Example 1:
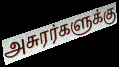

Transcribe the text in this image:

அசுரர்களுக்கு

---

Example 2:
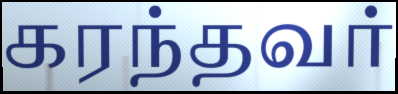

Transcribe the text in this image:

கரந்தவர்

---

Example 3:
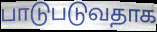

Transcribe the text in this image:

பாடுபடுவதாக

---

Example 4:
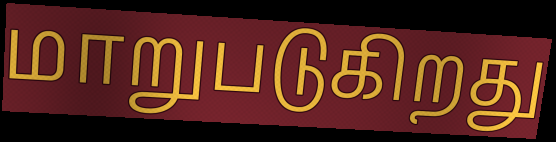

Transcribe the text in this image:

மாறுபடுகிறது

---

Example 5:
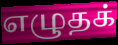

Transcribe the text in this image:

எழுதக்